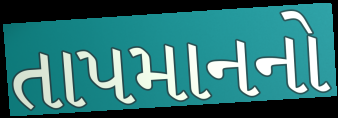
તાપમાનનો